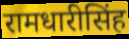
रामधारीसिंह